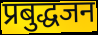
प्रबुद्धजन